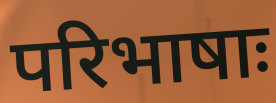
परिभाषाः